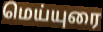
மெய்யுரை